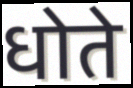
धोते